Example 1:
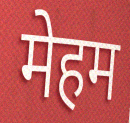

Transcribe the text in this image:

मेहम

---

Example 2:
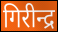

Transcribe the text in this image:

गिरीन्द्र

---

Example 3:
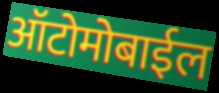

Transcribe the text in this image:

ऑटोमोबाईल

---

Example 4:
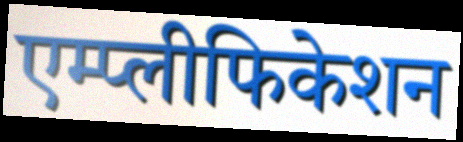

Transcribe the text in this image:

एम्प्लीफिकेशन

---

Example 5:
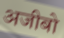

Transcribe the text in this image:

अजीबो